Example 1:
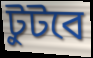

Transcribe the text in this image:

টুটবে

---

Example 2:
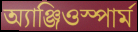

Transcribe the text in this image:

অ্যাঞ্জিওস্পার্ম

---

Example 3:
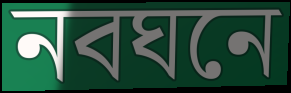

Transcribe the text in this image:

নবঘনে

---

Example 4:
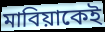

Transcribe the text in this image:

মাবিয়াকেই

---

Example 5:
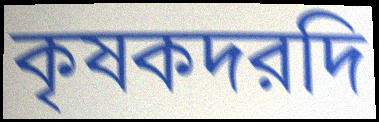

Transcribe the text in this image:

কৃষকদরদি